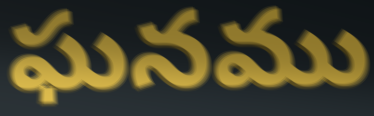
ఘనము